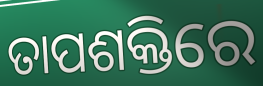
ତାପଶକ୍ତିରେ